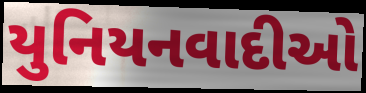
યુનિયનવાદીઓ